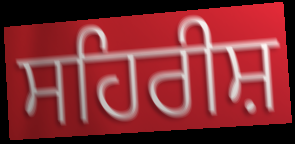
ਸਹਿਰੀਸ਼